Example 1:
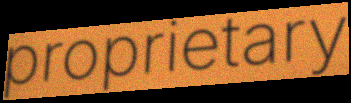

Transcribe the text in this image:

proprietary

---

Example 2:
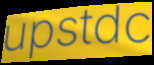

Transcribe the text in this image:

upstdc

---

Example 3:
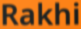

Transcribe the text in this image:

Rakhi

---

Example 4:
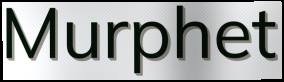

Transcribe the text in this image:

Murphet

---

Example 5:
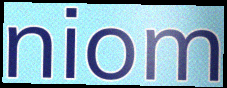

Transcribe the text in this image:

niom